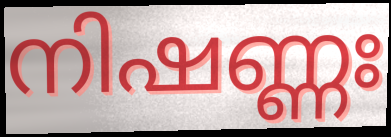
നിഷണ്ണഃ